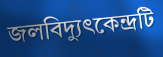
জলবিদ্যুৎকেন্দ্রটি